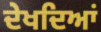
ਦੇਖਦਿਆਂ